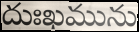
దుఃఖమును